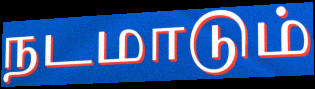
நடமாடும்